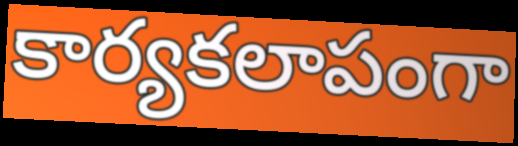
కార్యకలాపంగా